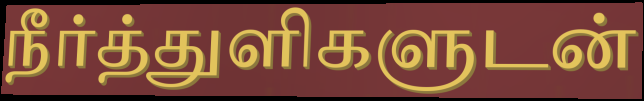
நீர்த்துளிகளுடன்